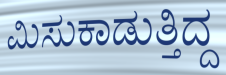
ಮಿಸುಕಾಡುತ್ತಿದ್ದ